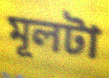
মূলটা